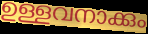
ഉള്ളവനാക്കും